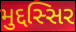
મુદ્દસ્સિર